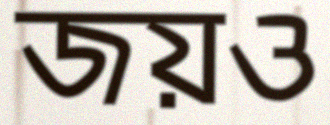
জয়ও